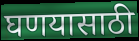
घणयासाठी